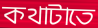
কথাটাতে